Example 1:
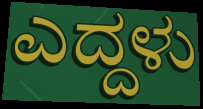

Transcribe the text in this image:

ಎದ್ದಳು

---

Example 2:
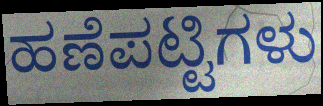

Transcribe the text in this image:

ಹಣೆಪಟ್ಟಿಗಳು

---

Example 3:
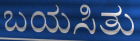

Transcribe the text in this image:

ಬಯಸಿತು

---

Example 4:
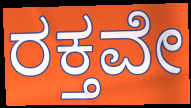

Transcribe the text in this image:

ರಕ್ತವೇ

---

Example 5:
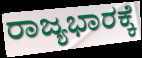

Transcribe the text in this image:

ರಾಜ್ಯಭಾರಕ್ಕೆ